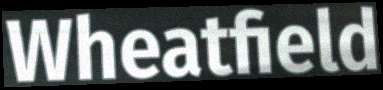
Wheatfield